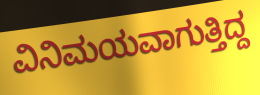
ವಿನಿಮಯವಾಗುತ್ತಿದ್ದ